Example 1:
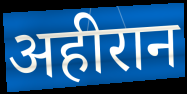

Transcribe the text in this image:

अहीरान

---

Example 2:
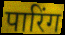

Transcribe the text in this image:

पारिंग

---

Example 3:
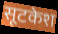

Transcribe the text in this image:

सूटकेश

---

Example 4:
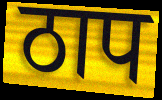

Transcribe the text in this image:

ठाप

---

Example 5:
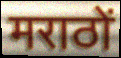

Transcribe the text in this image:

मराठों